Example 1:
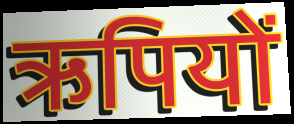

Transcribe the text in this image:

ऋपियों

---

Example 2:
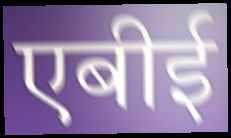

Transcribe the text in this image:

एबीई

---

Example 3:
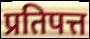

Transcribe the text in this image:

प्रतिपत्त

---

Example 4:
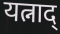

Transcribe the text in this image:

यत्नाद्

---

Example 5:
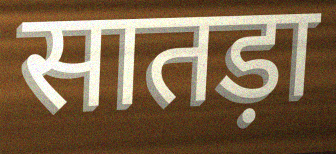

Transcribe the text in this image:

सातड़ा